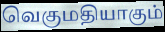
வெகுமதியாகும்